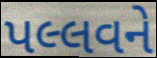
પલ્લવને